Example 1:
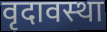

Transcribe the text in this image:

वृदावस्था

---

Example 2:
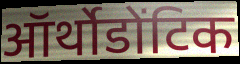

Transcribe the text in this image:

ऑर्थोडोंटिक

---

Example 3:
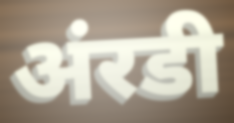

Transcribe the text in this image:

अंरडी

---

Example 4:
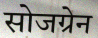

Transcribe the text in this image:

सोजग्रेन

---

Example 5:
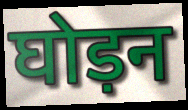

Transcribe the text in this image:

घोड़न